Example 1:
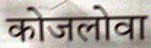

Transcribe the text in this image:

कोजलोवा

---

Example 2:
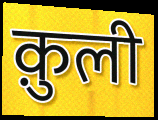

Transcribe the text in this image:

क़ुली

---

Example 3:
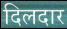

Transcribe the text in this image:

दिलदार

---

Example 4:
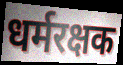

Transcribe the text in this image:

धर्मरक्षक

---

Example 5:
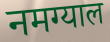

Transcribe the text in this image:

नमग्याल